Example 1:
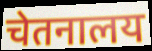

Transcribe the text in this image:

चेतनालय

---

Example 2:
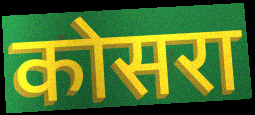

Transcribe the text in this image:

कोसरा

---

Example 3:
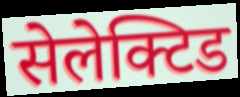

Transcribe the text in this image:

सेलेक्टिड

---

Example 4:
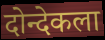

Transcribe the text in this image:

दोन्देकला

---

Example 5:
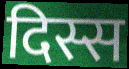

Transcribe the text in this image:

दिस्स